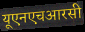
यूएनएचआरसी